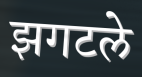
झगटले